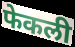
फेकली